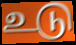
உடு